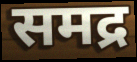
समद्र